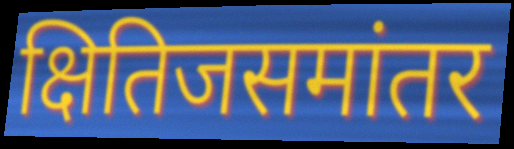
क्षितिजसमांतर